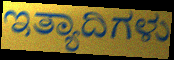
ಇತ್ಯಾದಿಗಳು